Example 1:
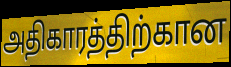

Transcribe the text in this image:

அதிகாரத்திற்கான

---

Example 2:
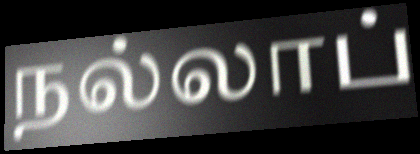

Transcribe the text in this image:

நல்லாப்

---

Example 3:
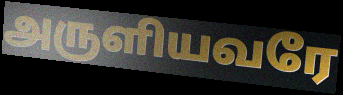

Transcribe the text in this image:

அருளியவரே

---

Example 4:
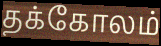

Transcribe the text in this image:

தக்கோலம்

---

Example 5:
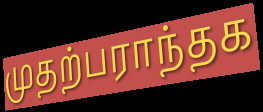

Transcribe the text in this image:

முதற்பராந்தக